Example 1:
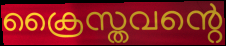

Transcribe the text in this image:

ക്രൈസ്തവന്റെ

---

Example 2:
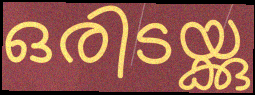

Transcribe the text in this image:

ഒരിടയ്ക്കു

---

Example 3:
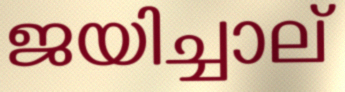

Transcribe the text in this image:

ജയിച്ചാല്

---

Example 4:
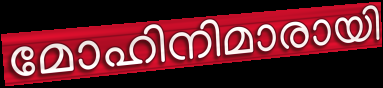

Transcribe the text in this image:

മോഹിനിമാരായി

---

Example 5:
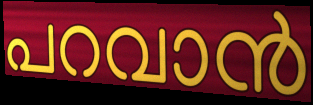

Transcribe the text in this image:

പറവാൻ